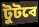
টুটবে